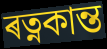
ৰত্নকান্ত